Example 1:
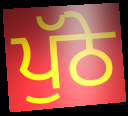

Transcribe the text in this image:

ਪੁੱਠੇ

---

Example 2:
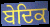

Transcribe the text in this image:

ਬੇਦਿਕ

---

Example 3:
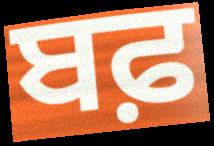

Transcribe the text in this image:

ਬਫ਼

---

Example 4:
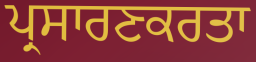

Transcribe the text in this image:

ਪ੍ਰਸਾਰਣਕਰਤਾ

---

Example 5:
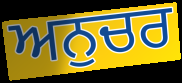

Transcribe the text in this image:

ਅਨੁਚਰ